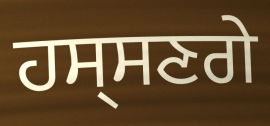
ਹਸ੍ਸਣਗੇ